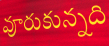
వూరుకున్నది